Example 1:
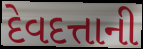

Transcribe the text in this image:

દેવદત્તાની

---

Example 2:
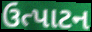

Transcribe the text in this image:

ઉત્પાટન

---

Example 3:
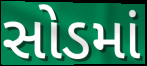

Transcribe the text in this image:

સોડમાં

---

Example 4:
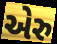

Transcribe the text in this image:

એરુ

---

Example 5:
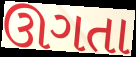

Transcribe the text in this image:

ઊગતા